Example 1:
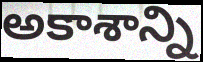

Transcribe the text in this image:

అకాశాన్ని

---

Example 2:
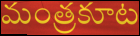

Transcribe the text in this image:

మంత్రకూట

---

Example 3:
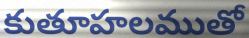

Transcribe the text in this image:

కుతూహలముతో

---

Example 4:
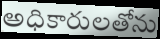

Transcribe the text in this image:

అధికారులతోను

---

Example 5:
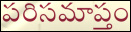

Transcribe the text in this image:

పరిసమాప్తం